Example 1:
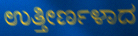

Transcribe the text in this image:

ಉತ್ತೀರ್ಣಳಾದ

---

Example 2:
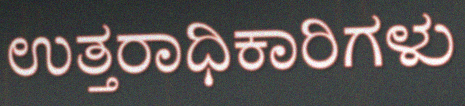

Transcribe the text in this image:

ಉತ್ತರಾಧಿಕಾರಿಗಳು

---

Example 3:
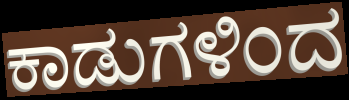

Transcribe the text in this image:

ಕಾಡುಗಳಿಂದ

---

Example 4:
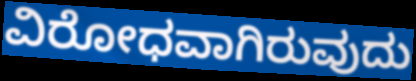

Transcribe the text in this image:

ವಿರೋಧವಾಗಿರುವುದು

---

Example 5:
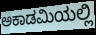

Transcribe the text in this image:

ಅಕಾಡಮಿಯಲ್ಲಿ